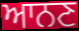
ਆਨਣ